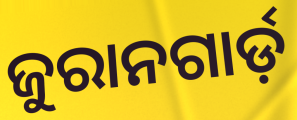
ଜୁରାନଗାର୍ଡ଼